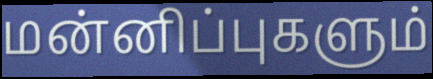
மன்னிப்புகளும்